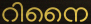
റിനൈ